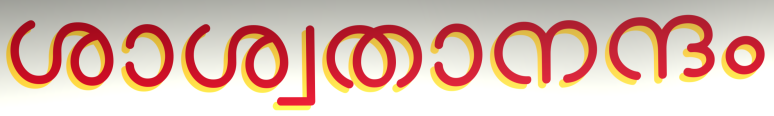
ശാശ്വതാനന്ദം